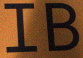
IB